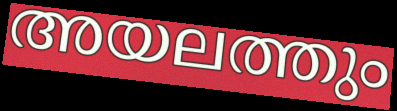
അയലത്തും